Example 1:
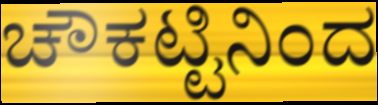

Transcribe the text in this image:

ಚೌಕಟ್ಟಿನಿಂದ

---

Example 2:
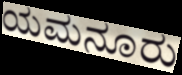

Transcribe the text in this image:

ಯಮನೂರು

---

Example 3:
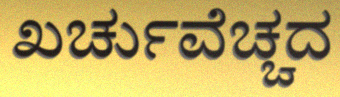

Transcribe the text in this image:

ಖರ್ಚುವೆಚ್ಚದ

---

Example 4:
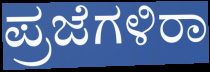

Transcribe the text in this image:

ಪ್ರಜೆಗಳಿರಾ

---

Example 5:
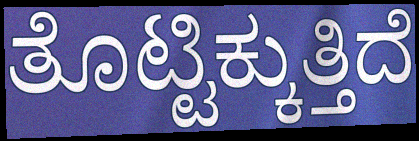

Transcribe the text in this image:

ತೊಟ್ಟಿಕ್ಕುತ್ತಿದೆ